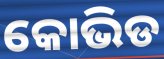
କୋଭିଡ